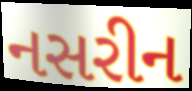
નસરીન